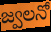
జ్వలనో